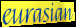
eurasian